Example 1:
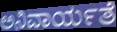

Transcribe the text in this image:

ಅನಿವಾರ್ಯತೆ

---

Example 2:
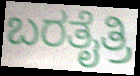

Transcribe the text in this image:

ಬರತೈತ್ರಿ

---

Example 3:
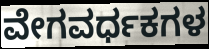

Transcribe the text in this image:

ವೇಗವರ್ಧಕಗಳ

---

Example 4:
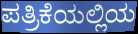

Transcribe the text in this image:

ಪತ್ರಿಕೆಯಲ್ಲಿಯ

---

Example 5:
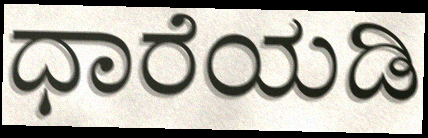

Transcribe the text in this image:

ಧಾರೆಯಡಿ